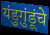
यंडुगुंडूंचे